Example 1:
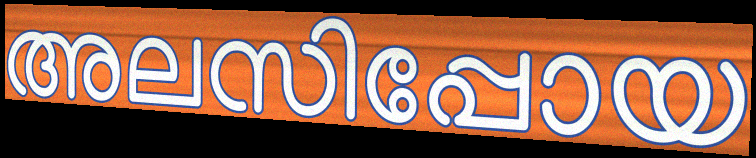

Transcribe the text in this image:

അലസിപ്പോയ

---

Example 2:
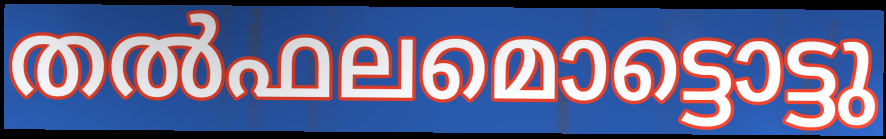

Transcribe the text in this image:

തൽഫലമൊട്ടൊട്ടു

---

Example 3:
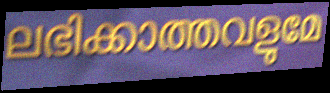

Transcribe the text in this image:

ലഭിക്കാത്തവളുമേ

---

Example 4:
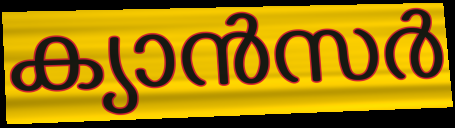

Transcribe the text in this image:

ക്യാൻസർ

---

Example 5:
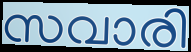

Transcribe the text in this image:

സവാരി